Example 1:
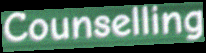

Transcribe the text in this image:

Counselling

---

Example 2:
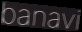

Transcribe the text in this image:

banavi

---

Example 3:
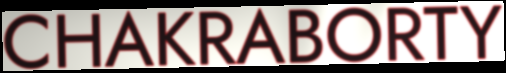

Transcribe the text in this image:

CHAKRABORTY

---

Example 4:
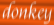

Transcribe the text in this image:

donkey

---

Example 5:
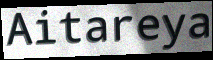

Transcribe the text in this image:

Aitareya